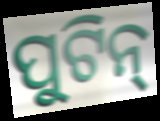
ପୁଟିନ୍